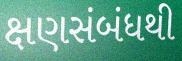
ક્ષણસંબંધથી